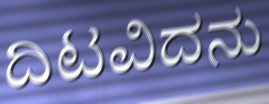
ದಿಟವಿದನು